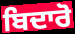
ਬਿਦਾਰੋ